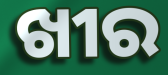
ଖୀର